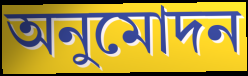
অনুমোদন